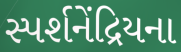
સ્પર્શનેંદ્રિયના